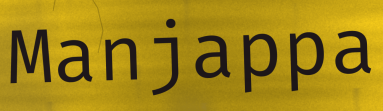
Manjappa